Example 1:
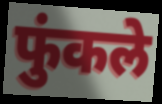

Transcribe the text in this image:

फुंकले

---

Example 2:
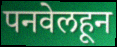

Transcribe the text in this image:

पनवेलहून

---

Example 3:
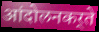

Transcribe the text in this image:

आंदोलनकर्ते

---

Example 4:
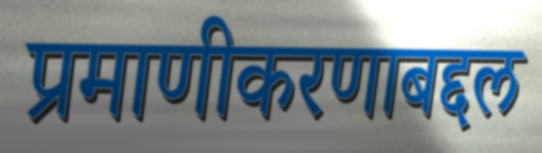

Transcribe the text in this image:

प्रमाणीकरणाबद्दल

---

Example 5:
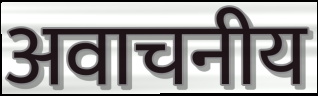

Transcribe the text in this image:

अवाचनीय